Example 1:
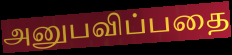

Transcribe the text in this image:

அனுபவிப்பதை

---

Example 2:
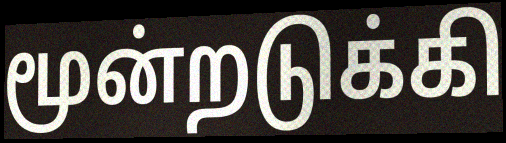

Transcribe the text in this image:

மூன்றடுக்கி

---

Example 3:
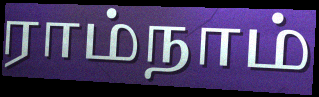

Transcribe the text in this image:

ராம்நாம்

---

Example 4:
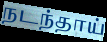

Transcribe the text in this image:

நடந்தாய்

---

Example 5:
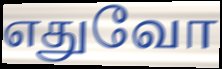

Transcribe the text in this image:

எதுவோ